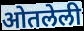
ओतलेली